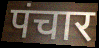
पंचार